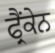
ਫ੍ਰੈਂਕੇਨ